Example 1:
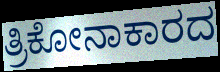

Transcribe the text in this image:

ತ್ರಿಕೋನಾಕಾರದ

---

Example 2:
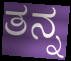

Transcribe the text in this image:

ತನ್ನ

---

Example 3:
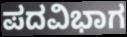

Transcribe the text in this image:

ಪದವಿಭಾಗ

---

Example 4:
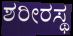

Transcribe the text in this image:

ಶರೀರಸ್ಥ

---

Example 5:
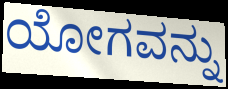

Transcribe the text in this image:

ಯೋಗವನ್ನು